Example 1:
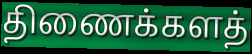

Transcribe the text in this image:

திணைக்களத்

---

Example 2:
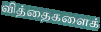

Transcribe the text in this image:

வித்தைகளைக்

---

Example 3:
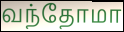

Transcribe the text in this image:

வந்தோமா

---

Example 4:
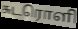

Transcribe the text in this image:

சுடரொளி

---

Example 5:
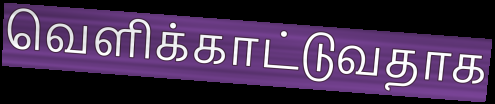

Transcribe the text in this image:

வெளிக்காட்டுவதாக